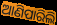
ଆଣିପାରିଲି